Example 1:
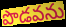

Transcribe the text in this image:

పొడవను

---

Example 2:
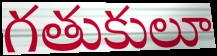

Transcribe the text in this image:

గతుకులూ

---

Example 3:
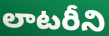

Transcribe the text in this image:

లాటరీని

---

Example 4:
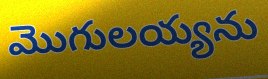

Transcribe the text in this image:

మొగులయ్యను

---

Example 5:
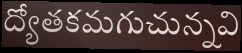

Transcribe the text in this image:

ద్యోతకమగుచున్నవి